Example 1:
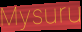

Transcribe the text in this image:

Mysuru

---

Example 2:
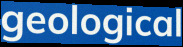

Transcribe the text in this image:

geological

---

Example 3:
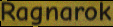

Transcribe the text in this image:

Ragnarok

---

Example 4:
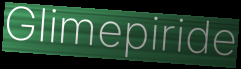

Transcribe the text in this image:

Glimepiride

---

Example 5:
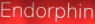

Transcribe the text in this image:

Endorphin